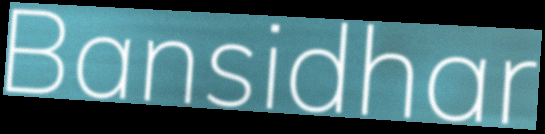
Bansidhar